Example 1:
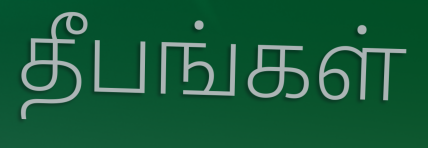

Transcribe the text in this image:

தீபங்கள்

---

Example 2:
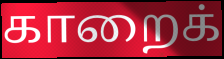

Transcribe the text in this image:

காறைக்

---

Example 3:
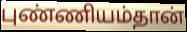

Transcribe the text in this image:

புண்ணியம்தான்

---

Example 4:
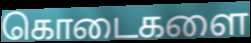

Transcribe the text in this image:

கொடைகளை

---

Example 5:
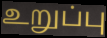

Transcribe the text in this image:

உறுப்பு